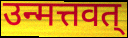
उन्मत्तवत्